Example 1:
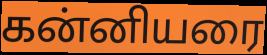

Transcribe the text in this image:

கன்னியரை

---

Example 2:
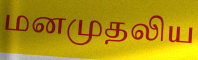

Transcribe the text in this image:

மனமுதலிய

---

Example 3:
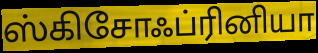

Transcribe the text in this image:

ஸ்கிசோஃப்ரினியா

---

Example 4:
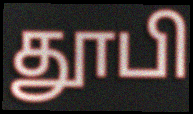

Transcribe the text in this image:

தூபி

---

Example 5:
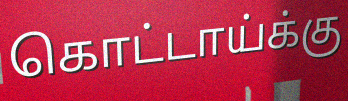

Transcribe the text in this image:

கொட்டாய்க்கு